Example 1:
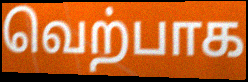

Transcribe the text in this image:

வெற்பாக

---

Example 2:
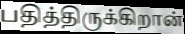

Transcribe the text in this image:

பதித்திருக்கிறான்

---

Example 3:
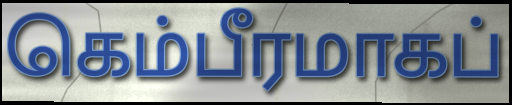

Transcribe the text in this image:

கெம்பீரமாகப்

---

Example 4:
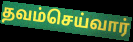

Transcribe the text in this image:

தவம்செய்வார்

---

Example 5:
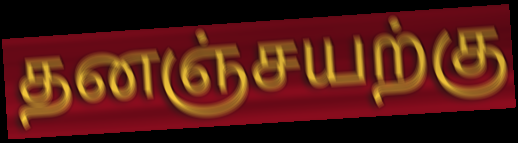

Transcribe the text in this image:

தனஞ்சயற்கு